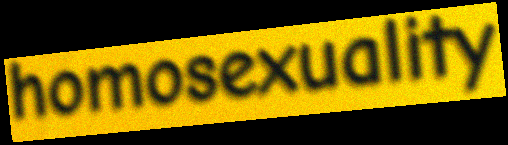
homosexuality